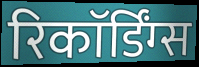
रिकॉर्डिंग्स